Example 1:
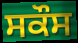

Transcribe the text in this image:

ਸਕੌਸ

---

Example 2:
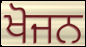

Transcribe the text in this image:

ਖੋਜਨ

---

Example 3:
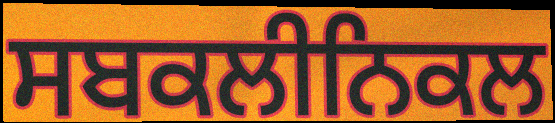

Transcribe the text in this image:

ਸਬਕਲੀਨਿਕਲ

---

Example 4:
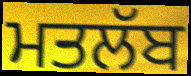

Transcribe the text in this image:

ਮਤਲੱਬ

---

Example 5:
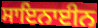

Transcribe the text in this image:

ਸਾਇਨਾਈਨ